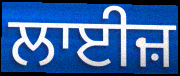
ਲਾਈਜ਼